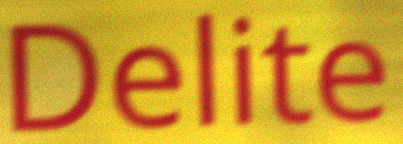
Delite